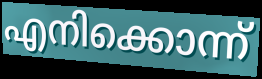
എനിക്കൊന്ന്